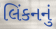
લિંકનનું